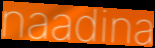
naadina